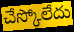
చేస్కోలేదు